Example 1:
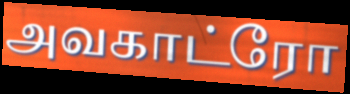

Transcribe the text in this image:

அவகாட்ரோ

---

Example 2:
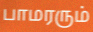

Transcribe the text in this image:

பாமரரும்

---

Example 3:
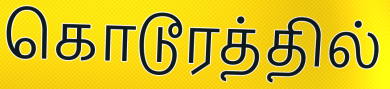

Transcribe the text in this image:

கொடூரத்தில்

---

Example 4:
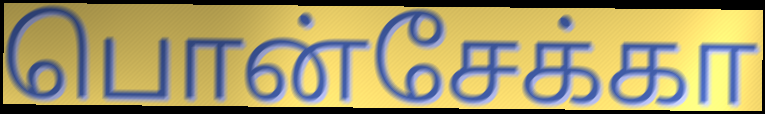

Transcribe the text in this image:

பொன்சேக்கா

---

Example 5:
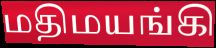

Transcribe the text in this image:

மதிமயங்கி